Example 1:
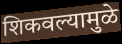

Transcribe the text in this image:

शिकवल्यामुळे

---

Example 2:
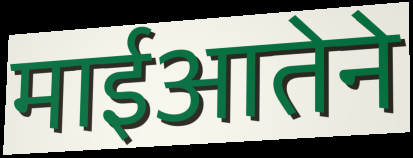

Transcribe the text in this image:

माईआतेने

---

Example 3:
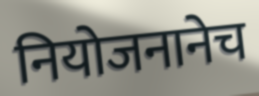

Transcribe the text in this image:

नियोजनानेच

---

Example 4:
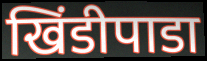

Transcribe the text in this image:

खिंडीपाडा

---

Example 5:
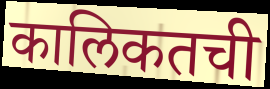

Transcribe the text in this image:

कालिकतची